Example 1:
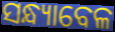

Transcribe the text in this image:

ସନ୍ଧ୍ୟାବେଳ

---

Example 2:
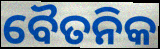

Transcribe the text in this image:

ବୈତନିକ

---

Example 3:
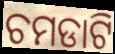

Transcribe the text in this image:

ଚମଡାଟି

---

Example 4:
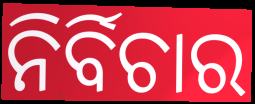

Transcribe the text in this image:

ନିର୍ବିଚାର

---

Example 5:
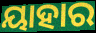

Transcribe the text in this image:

ୟାହାର